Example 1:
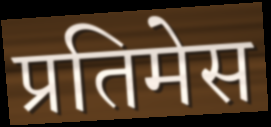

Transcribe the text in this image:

प्रतिमेस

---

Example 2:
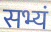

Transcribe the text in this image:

सभ्यं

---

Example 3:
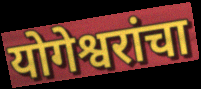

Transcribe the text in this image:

योगेश्वरांचा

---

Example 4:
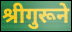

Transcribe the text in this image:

श्रीगुरूने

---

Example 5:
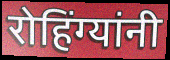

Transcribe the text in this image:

रोहिंग्यांनी